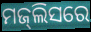
ମଜ୍‍ଲିସରେ